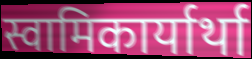
स्वामिकार्यार्था